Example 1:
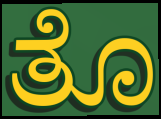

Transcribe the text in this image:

ತೊ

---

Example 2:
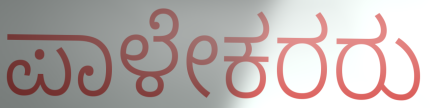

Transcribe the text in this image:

ಪಾಳೇಕರರು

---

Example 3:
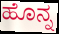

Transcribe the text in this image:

ಹೊನ್ನ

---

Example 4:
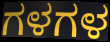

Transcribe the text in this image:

ಗಳಗಳ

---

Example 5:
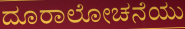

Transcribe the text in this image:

ದೂರಾಲೋಚನೆಯು